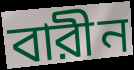
বারীন